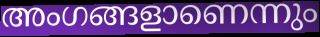
അംഗങ്ങളാണെന്നും